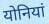
योनियां